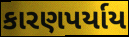
કારણપર્યાય